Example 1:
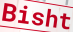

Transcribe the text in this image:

Bisht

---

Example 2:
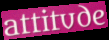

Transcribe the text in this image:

attitude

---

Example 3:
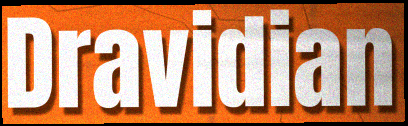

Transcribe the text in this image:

Dravidian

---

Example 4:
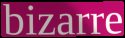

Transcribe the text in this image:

bizarre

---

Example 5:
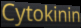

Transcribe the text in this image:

Cytokinin